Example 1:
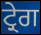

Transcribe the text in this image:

ਟ੍ਰੇਗ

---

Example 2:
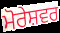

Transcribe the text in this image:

ਮੋਰੇਸ਼ਵਰ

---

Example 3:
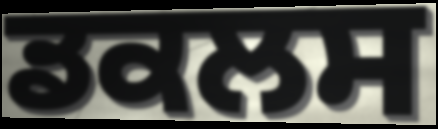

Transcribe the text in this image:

ਡਕਲਸ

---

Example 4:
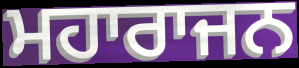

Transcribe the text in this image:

ਮਹਾਰਾਜਨ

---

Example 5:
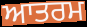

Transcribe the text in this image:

ਆਤਰਮ